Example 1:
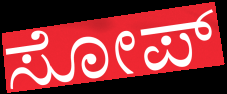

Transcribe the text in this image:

ಸೋಪ್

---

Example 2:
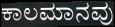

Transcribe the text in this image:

ಕಾಲಮಾನವು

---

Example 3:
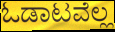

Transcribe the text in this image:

ಓಡಾಟವೆಲ್ಲ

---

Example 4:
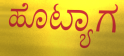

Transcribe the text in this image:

ಹೊಟ್ಯಾಗ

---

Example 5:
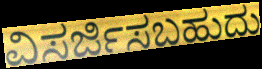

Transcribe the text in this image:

ವಿಸರ್ಜಿಸಬಹುದು